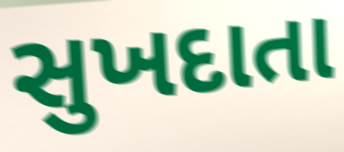
સુખદાતા